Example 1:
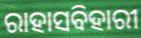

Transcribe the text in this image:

ରାହାସବିହାରୀ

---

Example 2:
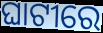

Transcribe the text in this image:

ଘାଟୀରେ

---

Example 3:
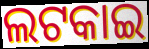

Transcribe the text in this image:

ଲଟକାଇ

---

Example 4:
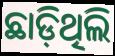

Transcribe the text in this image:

ଛାଡ଼ିଥିଲି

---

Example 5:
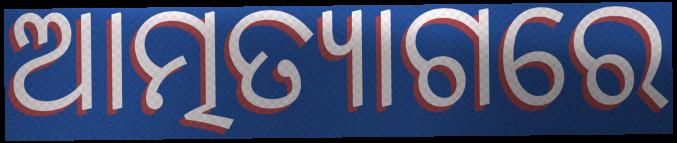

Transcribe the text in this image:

ଆତ୍ମତ୍ୟାଗରେ